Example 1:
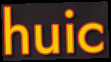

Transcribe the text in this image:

huic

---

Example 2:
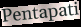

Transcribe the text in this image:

Pentapati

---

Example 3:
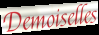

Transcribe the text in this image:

Demoiselles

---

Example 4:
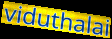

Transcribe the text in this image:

viduthalai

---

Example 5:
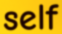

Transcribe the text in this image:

self